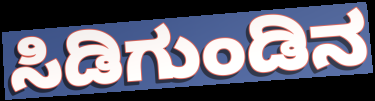
ಸಿಡಿಗುಂಡಿನ